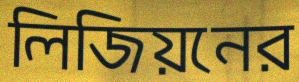
লিজিয়নের